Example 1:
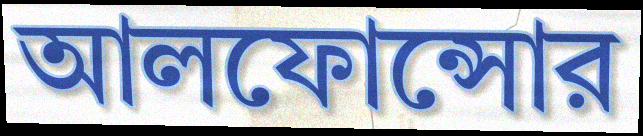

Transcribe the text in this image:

আলফোন্সোর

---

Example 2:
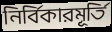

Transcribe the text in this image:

নির্বিকারমূর্তি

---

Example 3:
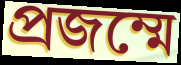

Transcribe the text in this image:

প্রজম্মে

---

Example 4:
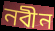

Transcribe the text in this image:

নবীন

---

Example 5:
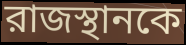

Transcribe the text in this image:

রাজস্থানকে